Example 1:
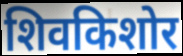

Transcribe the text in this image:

शिवकिशोर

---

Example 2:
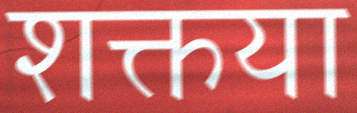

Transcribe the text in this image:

शक्तया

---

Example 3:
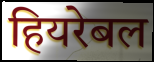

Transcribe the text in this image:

हियरेबल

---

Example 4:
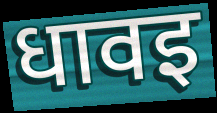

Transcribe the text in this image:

धावइ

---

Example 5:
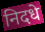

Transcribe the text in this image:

निदधे